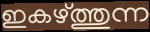
ഇകഴ്ത്തുന്ന